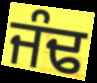
ਜੰਢ